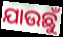
ଯାଉଛୁଁ